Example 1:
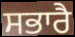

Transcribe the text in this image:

ਸਭਾਰੈ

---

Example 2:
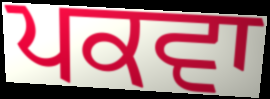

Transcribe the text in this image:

ਪਕਵਾ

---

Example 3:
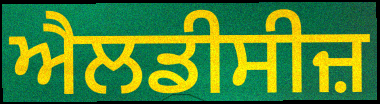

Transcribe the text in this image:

ਐਲਡੀਸੀਜ਼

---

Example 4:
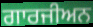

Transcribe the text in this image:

ਗਾਰਜੀਅਨ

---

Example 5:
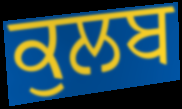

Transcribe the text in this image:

ਕੁਲਬ